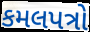
કમલપત્રો